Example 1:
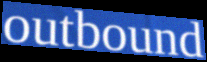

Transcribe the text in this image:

outbound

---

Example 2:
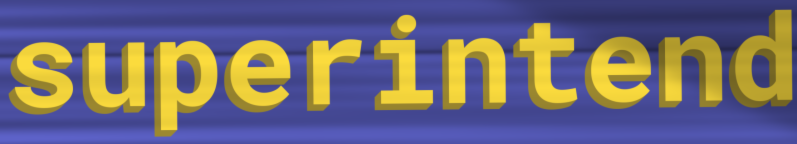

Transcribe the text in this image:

superintend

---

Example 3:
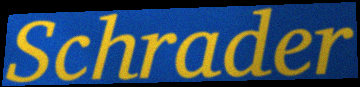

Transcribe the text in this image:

Schrader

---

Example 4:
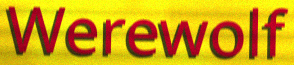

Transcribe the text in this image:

Werewolf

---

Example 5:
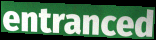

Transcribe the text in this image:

entranced